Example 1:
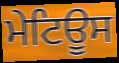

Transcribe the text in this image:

ਮੇਟਿਊਸ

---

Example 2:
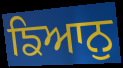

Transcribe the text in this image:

ਙਿਆਨੁ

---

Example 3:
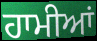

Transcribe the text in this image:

ਹਾਮੀਆਂ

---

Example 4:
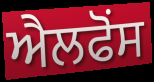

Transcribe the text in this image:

ਐਲਫੋਂਸ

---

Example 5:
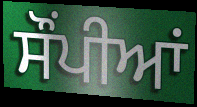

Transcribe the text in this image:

ਸੌਂਪੀਆਂ